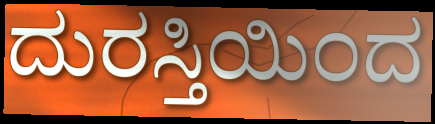
ದುರಸ್ತಿಯಿಂದ